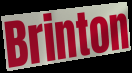
Brinton